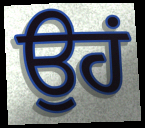
ਉਹਂ